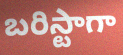
బరిస్టాగా